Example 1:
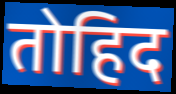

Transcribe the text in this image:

तोहिद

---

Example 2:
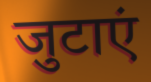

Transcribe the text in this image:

जुटाएं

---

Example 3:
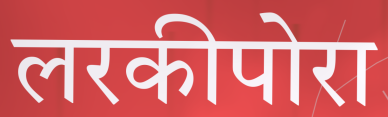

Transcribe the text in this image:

लरकीपोरा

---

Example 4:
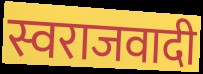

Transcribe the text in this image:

स्वराजवादी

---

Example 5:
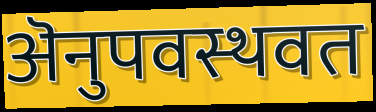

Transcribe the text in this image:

ऄनुपवस्थवत